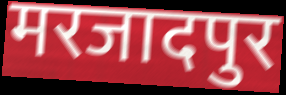
मरजादपुर